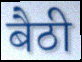
बैठी